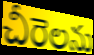
చీరెలను